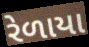
રેળાયા